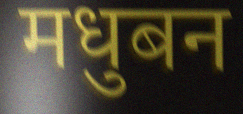
मधुबन